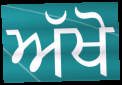
ਅੱਖੋ